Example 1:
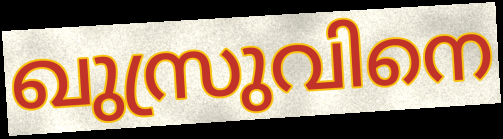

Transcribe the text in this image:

ഖുസ്രുവിനെ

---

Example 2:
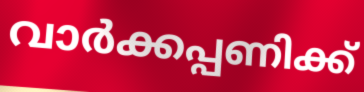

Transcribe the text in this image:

വാർക്കപ്പണിക്ക്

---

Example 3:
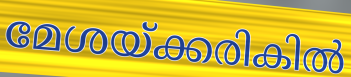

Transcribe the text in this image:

മേശയ്ക്കരികിൽ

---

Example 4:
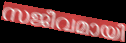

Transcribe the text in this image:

സജീവമായി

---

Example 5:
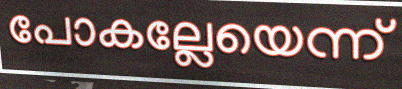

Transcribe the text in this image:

പോകല്ലേയെന്ന്